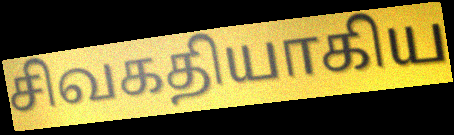
சிவகதியாகிய